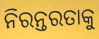
ନିରନ୍ତରତାକୁ